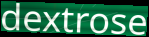
dextrose